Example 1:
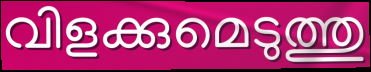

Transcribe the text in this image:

വിളക്കുമെടുത്തു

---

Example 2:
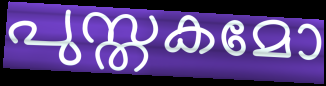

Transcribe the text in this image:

പുസ്തകമോ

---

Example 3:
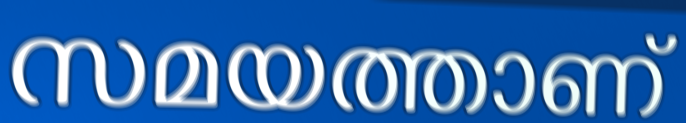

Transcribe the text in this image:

സമയത്താണ്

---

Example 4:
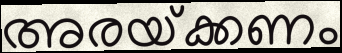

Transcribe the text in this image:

അരയ്‌ക്കണം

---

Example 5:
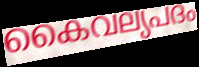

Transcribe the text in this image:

കൈവല്യപദം